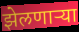
झेलणाऱ्या